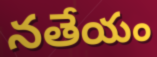
నతేయం